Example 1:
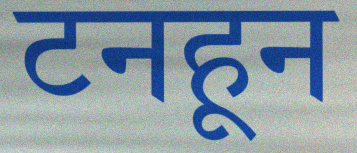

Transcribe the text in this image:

टनहून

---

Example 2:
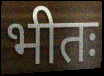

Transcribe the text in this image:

भीतः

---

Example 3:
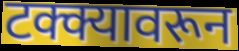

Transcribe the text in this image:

टक्क्यावरून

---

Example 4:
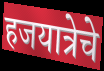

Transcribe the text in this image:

हजयात्रेचे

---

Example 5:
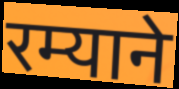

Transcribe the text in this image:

रम्याने